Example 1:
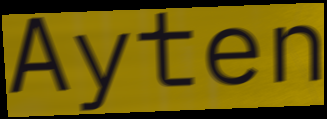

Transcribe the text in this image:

Ayten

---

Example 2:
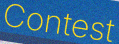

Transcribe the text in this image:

Contest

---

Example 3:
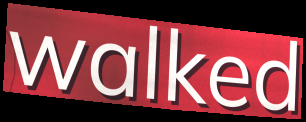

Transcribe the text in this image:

walked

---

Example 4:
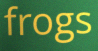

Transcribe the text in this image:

frogs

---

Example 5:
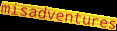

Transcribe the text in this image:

misadventures